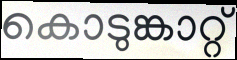
കൊടുങ്കാറ്റ്